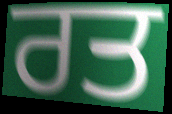
ਰਤ